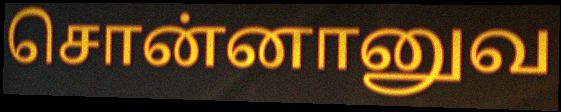
சொன்னானுவ